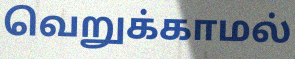
வெறுக்காமல்